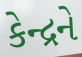
કેન્દ્રને